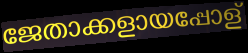
ജേതാക്കളായപ്പോള്